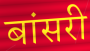
बांसरी